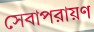
সেবাপরায়ণ